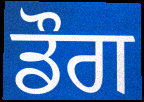
ਡੌਗ